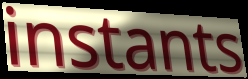
instants